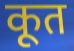
कूत